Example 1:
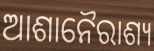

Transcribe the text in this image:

ଆଶାନୈରାଶ୍ୟ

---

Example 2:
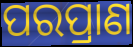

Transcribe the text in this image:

ପରପ୍ରାଣ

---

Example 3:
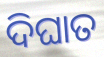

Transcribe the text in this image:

ଦିଘାତ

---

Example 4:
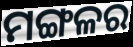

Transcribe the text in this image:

ମଙ୍ଗଳର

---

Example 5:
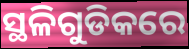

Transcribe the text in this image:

ସ୍ଥଳିଗୁଡିକରେ